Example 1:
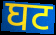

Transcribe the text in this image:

घट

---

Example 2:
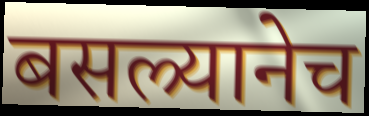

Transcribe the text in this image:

बसल्यानेच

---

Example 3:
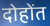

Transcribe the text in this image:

दोहोंत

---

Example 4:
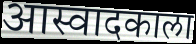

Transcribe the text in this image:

आस्वादकाला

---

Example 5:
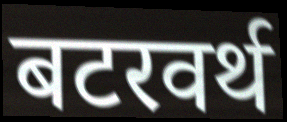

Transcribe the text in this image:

बटरवर्थ